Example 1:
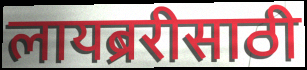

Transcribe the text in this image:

लायब्ररीसाठी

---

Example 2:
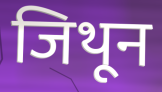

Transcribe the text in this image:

जिथून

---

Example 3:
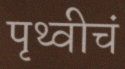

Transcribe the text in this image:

पृथ्वीचं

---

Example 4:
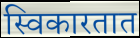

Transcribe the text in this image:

स्विकारतात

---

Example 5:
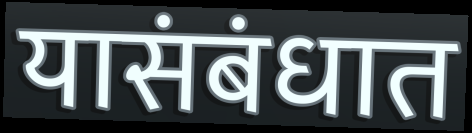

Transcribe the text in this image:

यासंबंधात